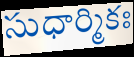
సుధార్మికః